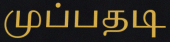
முப்பதடி